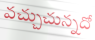
వచ్చుచున్నదో